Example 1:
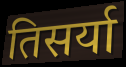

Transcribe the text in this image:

तिसर्या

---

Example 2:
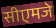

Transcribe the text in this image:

सीएमजे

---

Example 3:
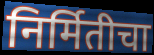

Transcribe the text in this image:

निर्मितीचा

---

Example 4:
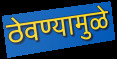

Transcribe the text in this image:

ठेवण्यामुळे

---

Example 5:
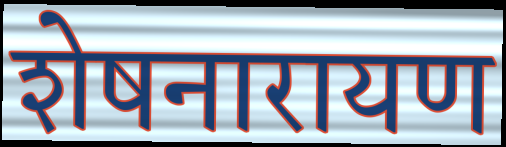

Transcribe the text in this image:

शेषनारायण